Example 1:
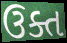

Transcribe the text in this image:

ઉક્ત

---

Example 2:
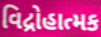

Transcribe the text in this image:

વિદ્રોહાત્મક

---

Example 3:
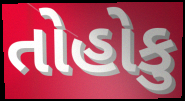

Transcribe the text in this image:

તોહોકુ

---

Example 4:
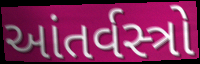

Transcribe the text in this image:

આંતર્વસ્ત્રો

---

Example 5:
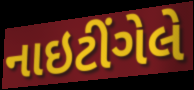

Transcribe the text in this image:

નાઇટીંગેલે